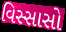
વિસ્સાસો